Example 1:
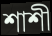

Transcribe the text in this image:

শাশী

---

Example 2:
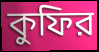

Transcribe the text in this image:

কুফির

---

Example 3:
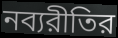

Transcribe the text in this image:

নব্যরীতির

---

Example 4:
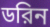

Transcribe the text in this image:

ডরিন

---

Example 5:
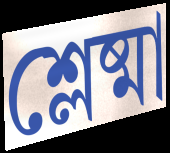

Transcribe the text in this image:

শ্লেষ্মা